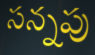
సన్నపు